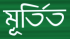
মূৰ্তিত